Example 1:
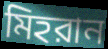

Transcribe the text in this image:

মিহরান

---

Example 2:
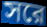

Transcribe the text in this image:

সরে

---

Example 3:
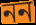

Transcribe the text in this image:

নন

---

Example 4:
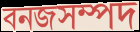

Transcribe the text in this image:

বনজসম্পদ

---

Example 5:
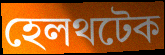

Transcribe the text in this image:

হেলথটেক